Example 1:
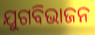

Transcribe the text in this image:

ଯୁଗବିଭାଜନ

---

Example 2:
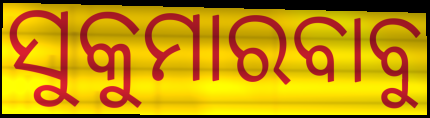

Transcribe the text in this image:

ସୁକୁମାରବାବୁ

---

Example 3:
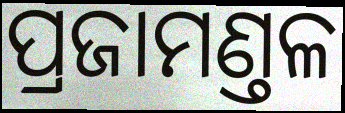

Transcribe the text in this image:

ପ୍ରଜାମଣ୍ତଳ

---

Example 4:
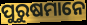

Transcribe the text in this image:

ପୁରୁଷମାନେ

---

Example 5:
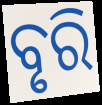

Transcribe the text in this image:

ବୃରି